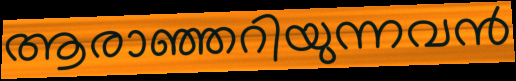
ആരാഞ്ഞറിയുന്നവൻ